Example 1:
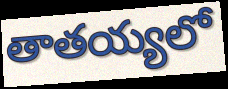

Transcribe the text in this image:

తాతయ్యలో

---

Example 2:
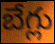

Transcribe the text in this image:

బేగ్లు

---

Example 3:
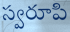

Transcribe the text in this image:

స్వరూపి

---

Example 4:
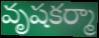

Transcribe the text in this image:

వృషకర్మా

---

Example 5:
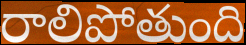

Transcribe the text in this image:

రాలిపోతుంది